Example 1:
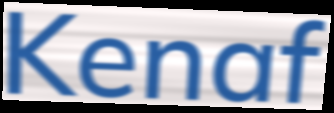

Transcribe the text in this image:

Kenaf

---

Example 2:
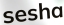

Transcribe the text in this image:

sesha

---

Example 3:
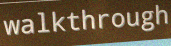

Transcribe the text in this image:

walkthrough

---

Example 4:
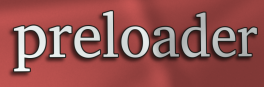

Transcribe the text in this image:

preloader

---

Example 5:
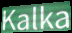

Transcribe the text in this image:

Kalka